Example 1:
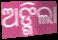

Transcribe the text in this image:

ଅଙ୍ଗିଲା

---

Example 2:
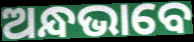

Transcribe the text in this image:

ଅନ୍ଧଭାବେ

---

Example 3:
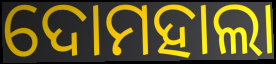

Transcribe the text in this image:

ଦୋମହାଲା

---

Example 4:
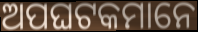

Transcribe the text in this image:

ଅପଘଟକମାନେ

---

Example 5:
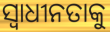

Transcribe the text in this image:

ସ୍ଵାଧୀନତାକୁ